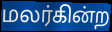
மலர்கின்ற